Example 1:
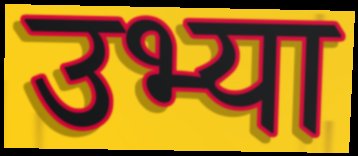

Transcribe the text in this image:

उभ्या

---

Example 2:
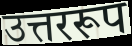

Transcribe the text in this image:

उत्तररूप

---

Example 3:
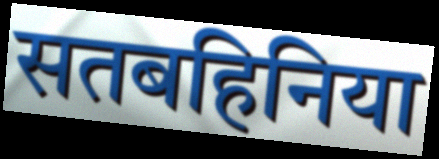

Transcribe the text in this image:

सतबहिनिया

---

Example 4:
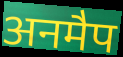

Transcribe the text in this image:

अनमैप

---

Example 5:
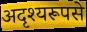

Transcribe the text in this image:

अदृश्यरूपसे